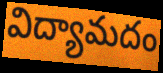
విద్యామదం